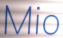
Mio